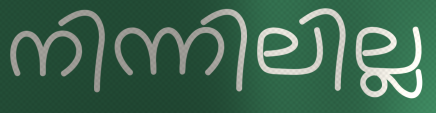
നിന്നിലില്ല